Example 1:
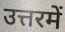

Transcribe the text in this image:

उत्तरमें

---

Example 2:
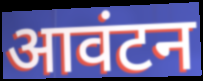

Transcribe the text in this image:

आवंटन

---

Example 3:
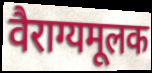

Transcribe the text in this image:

वैराग्यमूलक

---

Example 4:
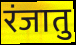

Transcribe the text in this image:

रंजातु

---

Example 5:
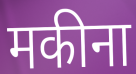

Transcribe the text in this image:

मकीना